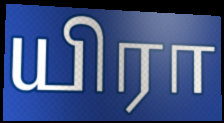
யிரா